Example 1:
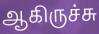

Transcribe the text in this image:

ஆகிருச்சு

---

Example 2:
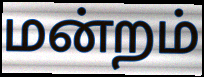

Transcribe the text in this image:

மன்றம்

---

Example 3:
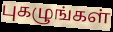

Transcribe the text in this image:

புகழுங்கள்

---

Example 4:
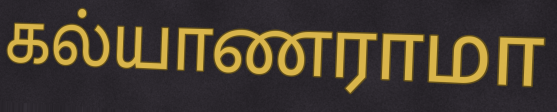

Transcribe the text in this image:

கல்யாணராமா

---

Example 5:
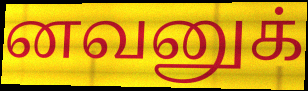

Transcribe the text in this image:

னவனுக்